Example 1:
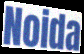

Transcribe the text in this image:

Noida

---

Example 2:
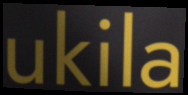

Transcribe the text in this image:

ukila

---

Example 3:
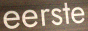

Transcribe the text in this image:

eerste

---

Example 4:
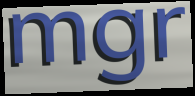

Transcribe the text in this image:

mgr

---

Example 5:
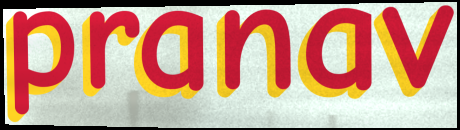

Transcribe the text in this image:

pranav